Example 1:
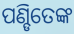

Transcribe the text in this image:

ପଣ୍ଡିତେଙ୍କ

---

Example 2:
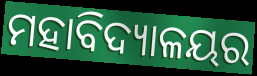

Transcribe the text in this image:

ମହାବିଦ୍ୟାଳୟର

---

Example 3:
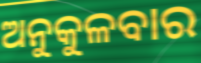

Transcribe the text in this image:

ଅନୁକୁଳବାର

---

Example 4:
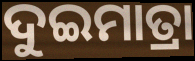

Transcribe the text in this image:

ଦୁଇମାତ୍ରା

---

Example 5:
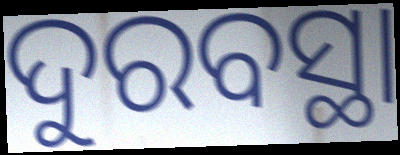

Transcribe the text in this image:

ଦୁରବସ୍ଥା